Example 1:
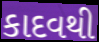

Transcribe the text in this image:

કાદવથી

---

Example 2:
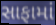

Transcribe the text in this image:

સાફામાં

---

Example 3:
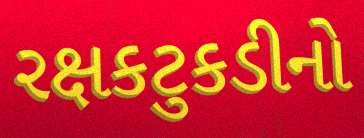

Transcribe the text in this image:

રક્ષકટુકડીનો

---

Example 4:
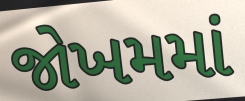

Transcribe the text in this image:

જોખમમાં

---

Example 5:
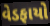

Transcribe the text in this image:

વેડફાયો